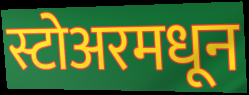
स्टोअरमधून